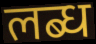
लब्ध